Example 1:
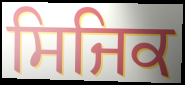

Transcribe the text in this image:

ਸਿਜਿਕ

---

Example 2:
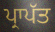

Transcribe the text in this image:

ਪ੍ਰਾਪੱਤ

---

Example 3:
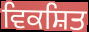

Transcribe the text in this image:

ਵਿਕਸ਼ਿਤ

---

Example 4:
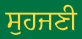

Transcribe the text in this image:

ਸੁਹਜਣੀ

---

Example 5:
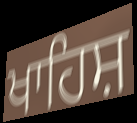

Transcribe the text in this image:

ਖਾਹਿਸ਼